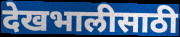
देखभालीसाठी